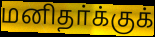
மனிதர்க்குக்